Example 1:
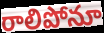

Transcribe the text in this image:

రాలిపోనూ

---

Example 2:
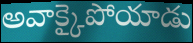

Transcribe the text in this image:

అవాక్కైపోయాడు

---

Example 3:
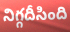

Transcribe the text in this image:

నిగ్గదీసింది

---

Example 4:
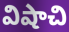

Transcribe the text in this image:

విషాచి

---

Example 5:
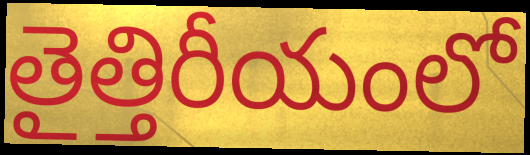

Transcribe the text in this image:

తైత్తిరీయంలో